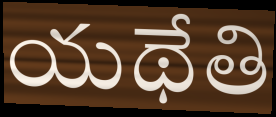
యథేతి